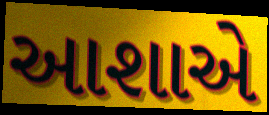
આશાએ